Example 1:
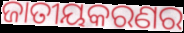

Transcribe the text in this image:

ଜାତୀୟକରଣର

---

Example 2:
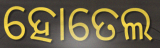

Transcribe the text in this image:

ହୋତେଲ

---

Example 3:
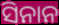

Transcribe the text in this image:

ସିନାନ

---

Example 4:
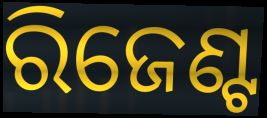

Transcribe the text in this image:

ରିଜେଣ୍ଟ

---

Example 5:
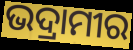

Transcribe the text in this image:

ଭଦ୍ରାମୀର